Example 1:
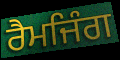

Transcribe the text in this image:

ਰੈਮਜਿੰਗ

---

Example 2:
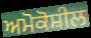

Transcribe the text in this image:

ਅਮੋਕੋਸ਼ੀਲ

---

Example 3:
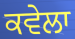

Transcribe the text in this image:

ਕਵੇਲਾ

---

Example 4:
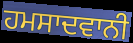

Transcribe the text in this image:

ਹਮਸਾਦਵਾਨੀ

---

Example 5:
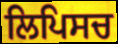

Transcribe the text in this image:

ਲਿਪਿਸਚ